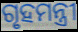
ଗୃହମନ୍ତ୍ରୀ